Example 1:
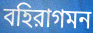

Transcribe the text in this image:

বহিরাগমন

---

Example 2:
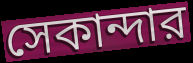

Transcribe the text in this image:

সেকান্দার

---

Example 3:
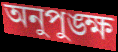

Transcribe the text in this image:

অনুপুঙ্ক্ষ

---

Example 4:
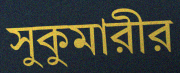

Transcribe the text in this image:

সুকুমারীর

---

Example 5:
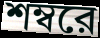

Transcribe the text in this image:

শম্বরে